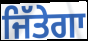
ਜਿੱਤੇਗਾ